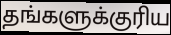
தங்களுக்குரிய